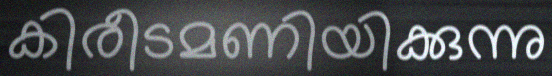
കിരീടമണിയിക്കുന്നു